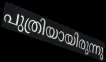
പുത്രിയായിരുന്നു